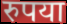
रुपया